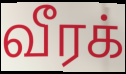
வீரக்